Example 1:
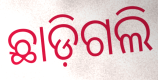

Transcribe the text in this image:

ଛାଡ଼ିଗଲି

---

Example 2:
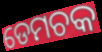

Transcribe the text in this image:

ଡେମଚକ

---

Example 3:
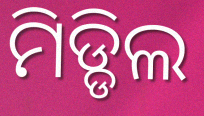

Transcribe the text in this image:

ମିଡ୍ଡିଲ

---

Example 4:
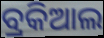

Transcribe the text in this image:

ବ୍ରକିଆଲ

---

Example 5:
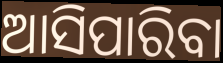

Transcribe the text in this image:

ଆସିପାରିବା